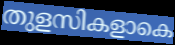
തുളസികളാകെ